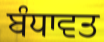
ਬੰਧਾਵਤ